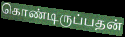
கொண்டிருப்பதன்